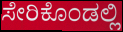
ಸೇರಿಕೊಂಡಲ್ಲಿ